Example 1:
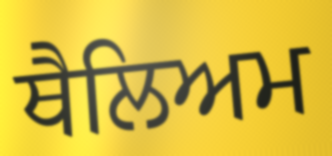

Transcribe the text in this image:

ਥੈਲਿਅਮ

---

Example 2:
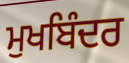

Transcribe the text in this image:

ਮੁਖਬਿੰਦਰ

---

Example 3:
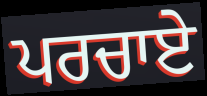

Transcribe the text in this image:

ਪਰਚਾਏ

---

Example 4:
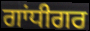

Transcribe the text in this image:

ਗਾਂਧੀਗਰ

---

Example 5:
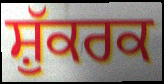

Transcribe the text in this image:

ਸ਼ੁੱਕਰਕ